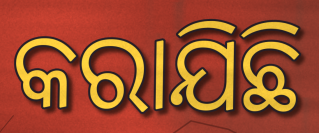
କରାଯିଛି